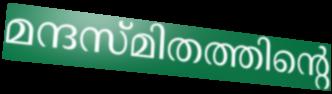
മന്ദസ്മിതത്തിന്റെ